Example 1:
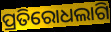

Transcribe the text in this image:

ପ୍ରତିରୋଧଲାଗି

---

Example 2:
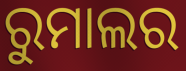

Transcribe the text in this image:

ରୁମାଲର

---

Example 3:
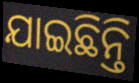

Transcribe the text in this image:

ଯାଇଛିନ୍ତି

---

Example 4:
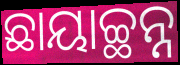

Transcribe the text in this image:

ଛାୟାଚ୍ଛନ୍ନ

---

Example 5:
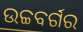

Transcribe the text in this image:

ଉଚ୍ଚବର୍ଗର